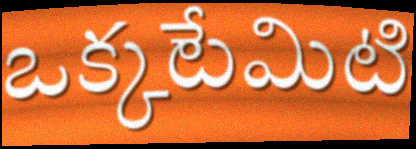
ఒక్కటేమిటి